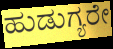
ಹುಡುಗ್ಯರೇ